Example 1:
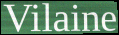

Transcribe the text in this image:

Vilaine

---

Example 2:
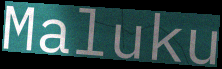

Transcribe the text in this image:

Maluku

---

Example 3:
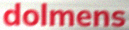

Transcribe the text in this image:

dolmens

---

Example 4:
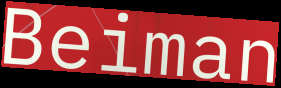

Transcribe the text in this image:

Beiman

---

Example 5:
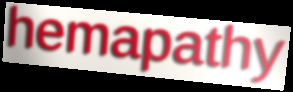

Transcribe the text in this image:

hemapathy